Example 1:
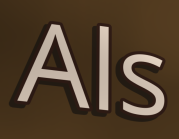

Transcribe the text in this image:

Als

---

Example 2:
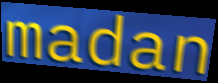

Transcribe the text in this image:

madan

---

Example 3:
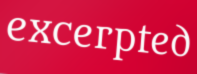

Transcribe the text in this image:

excerpted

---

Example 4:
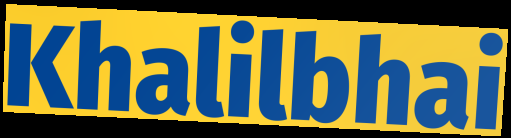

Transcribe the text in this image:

Khalilbhai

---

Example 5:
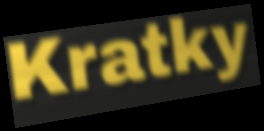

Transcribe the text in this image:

Kratky